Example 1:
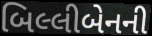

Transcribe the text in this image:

બિલ્લીબેનની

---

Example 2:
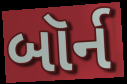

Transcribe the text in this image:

બૉર્ન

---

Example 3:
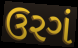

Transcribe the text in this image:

ઉરગં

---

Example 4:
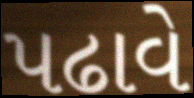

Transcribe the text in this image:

પઢાવે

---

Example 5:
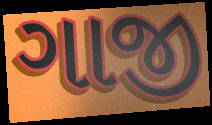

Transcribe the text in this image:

ગાજી